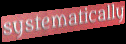
systematically